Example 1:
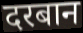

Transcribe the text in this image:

दरबान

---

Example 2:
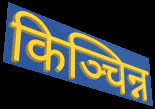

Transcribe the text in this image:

किञ्चिन्न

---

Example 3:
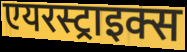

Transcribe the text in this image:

एयरस्ट्राइक्स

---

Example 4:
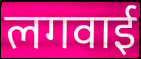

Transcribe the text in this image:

लगवाई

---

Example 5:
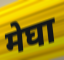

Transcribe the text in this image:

मेघा